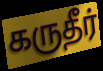
கருதீர்